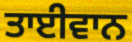
ਤਾਈਵਾਨ